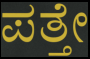
ಪತ್ತೇ